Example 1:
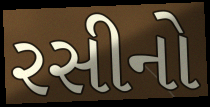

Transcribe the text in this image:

રસીનો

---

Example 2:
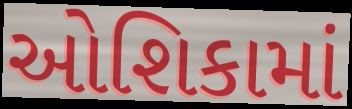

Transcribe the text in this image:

ઓશિકામાં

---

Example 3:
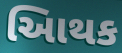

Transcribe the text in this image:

આિથક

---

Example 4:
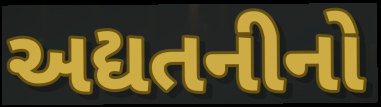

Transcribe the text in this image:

અદ્યતનીનો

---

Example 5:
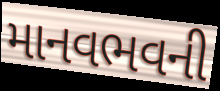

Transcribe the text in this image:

માનવભવની